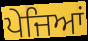
ਪੇਜਿਆਂ